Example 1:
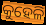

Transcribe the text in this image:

କୁହେଳି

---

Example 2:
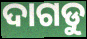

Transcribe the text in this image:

ଦାଗଡୁ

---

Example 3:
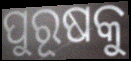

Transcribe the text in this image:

ପୁରୂଷକୁ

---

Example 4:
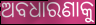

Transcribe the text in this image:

ଅବଧାରଣାକୁ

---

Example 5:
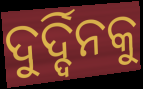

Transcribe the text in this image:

ଦୁର୍ଦ୍ଦିନକୁ